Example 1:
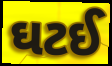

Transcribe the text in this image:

ઘટઈ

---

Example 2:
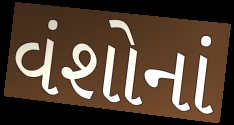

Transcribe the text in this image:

વંશોનાં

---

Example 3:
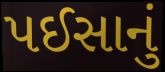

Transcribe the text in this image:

પઈસાનું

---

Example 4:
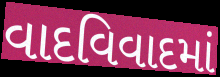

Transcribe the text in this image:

વાદવિવાદમાં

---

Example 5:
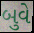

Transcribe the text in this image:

બુવે